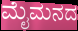
ಮೈಮನದ